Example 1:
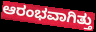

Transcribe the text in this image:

ಆರಂಭವಾಗಿತ್ತು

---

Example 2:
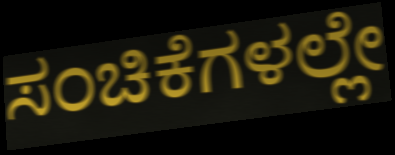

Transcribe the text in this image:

ಸಂಚಿಕೆಗಳಲ್ಲೇ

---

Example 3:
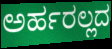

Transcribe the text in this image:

ಅರ್ಹರಲ್ಲದ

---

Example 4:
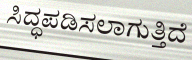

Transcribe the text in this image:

ಸಿದ್ಧಪಡಿಸಲಾಗುತ್ತಿದೆ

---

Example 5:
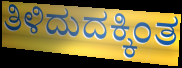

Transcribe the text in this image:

ತಿಳಿದುದಕ್ಕಿಂತ